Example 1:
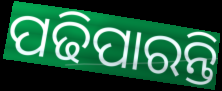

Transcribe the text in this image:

ପଢିପାରନ୍ତି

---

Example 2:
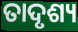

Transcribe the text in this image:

ତାଦୃଶ୍ୟ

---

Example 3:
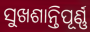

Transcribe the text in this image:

ସୁଖଶାନ୍ତିପୂର୍ଣ୍ଣ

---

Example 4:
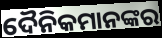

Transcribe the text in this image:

ଦୈନିକମାନଙ୍କର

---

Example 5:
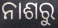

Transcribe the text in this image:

ନାଶରୁ